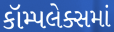
કૉમ્પલેક્સમાં